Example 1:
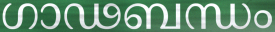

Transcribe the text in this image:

ഗാഢബന്ധം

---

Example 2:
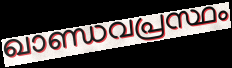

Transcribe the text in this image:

ഖാണ്ഡവപ്രസ്ഥം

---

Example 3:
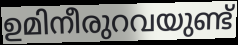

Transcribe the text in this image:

ഉമിനീരുറവയുണ്ട്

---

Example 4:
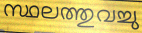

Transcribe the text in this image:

സ്ഥലത്തുവച്ചു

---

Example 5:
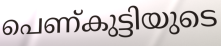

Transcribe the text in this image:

പെണ്കുട്ടിയുടെ